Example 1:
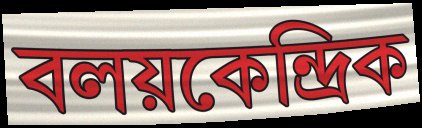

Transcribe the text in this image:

বলয়কেন্দ্রিক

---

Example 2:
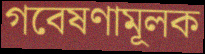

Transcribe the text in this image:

গবেষণামূলক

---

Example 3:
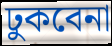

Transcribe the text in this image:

ঢুকবেনা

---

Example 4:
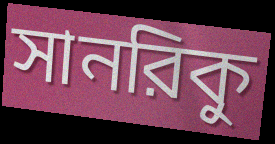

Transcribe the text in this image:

সানরিকু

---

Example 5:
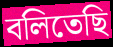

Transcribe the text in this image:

বলিতেছি